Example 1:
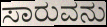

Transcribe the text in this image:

ಸಾರುವನು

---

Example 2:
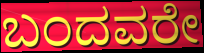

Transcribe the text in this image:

ಬಂದವರೇ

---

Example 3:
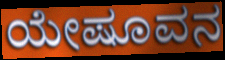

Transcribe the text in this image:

ಯೇಷೂವನ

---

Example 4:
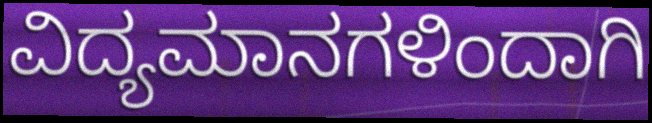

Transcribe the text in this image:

ವಿದ್ಯಮಾನಗಳಿಂದಾಗಿ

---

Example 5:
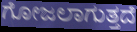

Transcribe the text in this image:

ಗೋಜಲಾಗುತ್ತದೆ